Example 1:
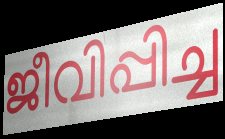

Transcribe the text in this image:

ജീവിപ്പിച്ച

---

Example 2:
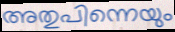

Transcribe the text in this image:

അതുപിന്നെയും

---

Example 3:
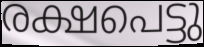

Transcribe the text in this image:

രക്ഷപെട്ടു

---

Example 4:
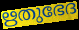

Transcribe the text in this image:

ഋതുഭേദ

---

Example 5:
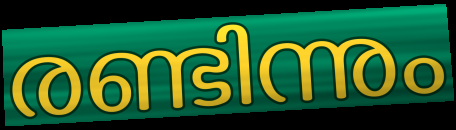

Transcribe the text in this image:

രണ്ടിന്നും